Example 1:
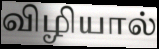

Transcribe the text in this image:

விழியால்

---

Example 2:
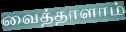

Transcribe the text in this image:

வைத்தாளாம்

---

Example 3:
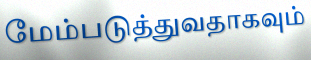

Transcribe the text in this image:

மேம்படுத்துவதாகவும்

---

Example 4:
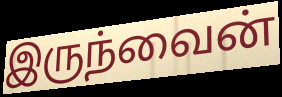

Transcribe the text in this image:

இருந்வைன்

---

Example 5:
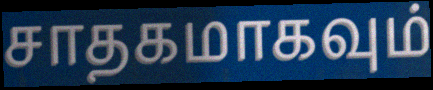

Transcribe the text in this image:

சாதகமாகவும்